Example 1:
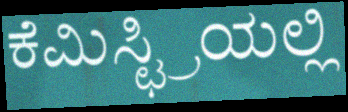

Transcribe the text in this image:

ಕೆಮಿಸ್ಟ್ರಿಯಲ್ಲಿ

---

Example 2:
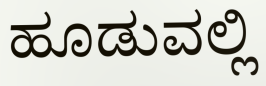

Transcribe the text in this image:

ಹೂಡುವಲ್ಲಿ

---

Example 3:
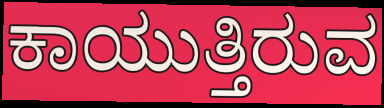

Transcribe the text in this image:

ಕಾಯುತ್ತಿರುವ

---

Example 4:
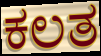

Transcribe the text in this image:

ಕಲತ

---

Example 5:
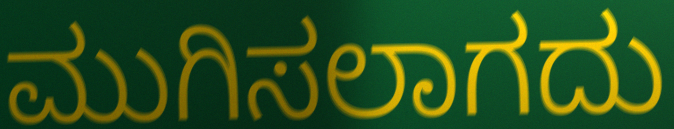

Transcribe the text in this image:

ಮುಗಿಸಲಾಗದು